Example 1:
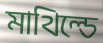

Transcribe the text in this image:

মাথিল্ডে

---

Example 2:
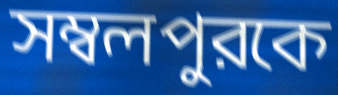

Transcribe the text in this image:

সম্বলপুরকে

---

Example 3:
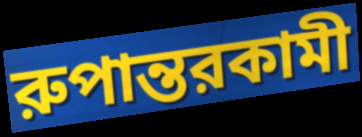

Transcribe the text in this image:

রুপান্তরকামী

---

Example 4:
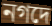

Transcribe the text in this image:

নগদে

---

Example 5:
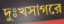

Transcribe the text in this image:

দুঃখসাগরে